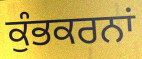
ਕੁੰਭਕਰਨਾਂ